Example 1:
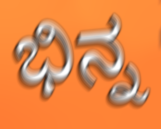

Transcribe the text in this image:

ಭಿನ್ನ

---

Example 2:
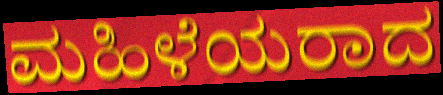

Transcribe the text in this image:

ಮಹಿಳೆಯರಾದ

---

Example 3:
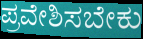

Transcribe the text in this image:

ಪ್ರವೇಶಿಸಬೇಕು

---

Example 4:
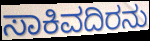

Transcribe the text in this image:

ಸಾಕಿವದಿರನು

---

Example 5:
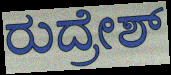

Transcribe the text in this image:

ರುದ್ರೇಶ್